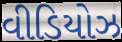
વીડિયોઝ